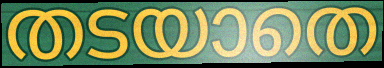
തടയാതെ